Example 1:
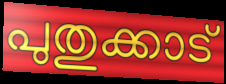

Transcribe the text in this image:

പുതുക്കാട്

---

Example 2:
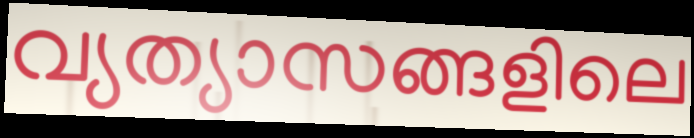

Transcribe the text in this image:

വ്യത്യാസങ്ങളിലെ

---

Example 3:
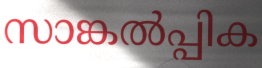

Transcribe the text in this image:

സാങ്കൽപ്പിക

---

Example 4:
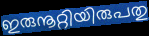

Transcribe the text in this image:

ഇരുനൂറ്റിയിരുപതു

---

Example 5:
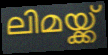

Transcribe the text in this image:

ലിമയ്ക്ക്